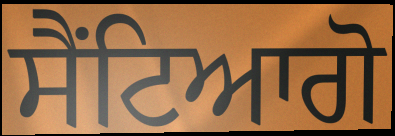
ਸੈਂਟਿਆਗੋ